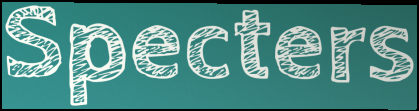
Specters